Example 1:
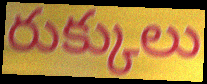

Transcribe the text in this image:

రుక్కులు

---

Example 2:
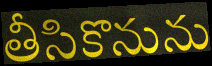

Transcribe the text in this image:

తీసికొనును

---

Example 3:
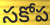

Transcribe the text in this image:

సకోప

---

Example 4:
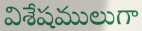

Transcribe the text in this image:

విశేషములుగా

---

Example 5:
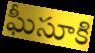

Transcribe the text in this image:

ఘీసూకి